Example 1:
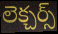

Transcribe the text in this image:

లెక్చర్స్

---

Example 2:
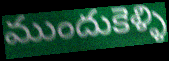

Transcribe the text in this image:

ముందుకెళ్ళి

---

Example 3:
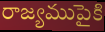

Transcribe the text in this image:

రాజ్యముపైకి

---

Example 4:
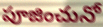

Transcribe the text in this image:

పూజించునో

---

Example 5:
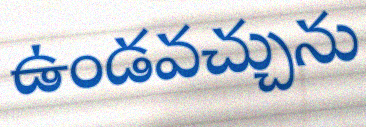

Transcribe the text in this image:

ఉండవచ్చును